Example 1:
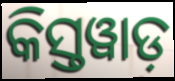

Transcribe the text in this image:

କିସ୍ତୱାଡ଼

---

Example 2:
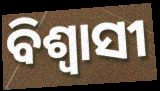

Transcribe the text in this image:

ବିଶ୍ୱାସୀ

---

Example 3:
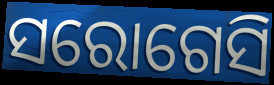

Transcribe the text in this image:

ସରୋଗେସି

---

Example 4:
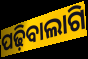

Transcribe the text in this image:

ପଢ଼ିବାଲାଗି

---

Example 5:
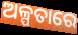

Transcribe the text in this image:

ଅଳ୍ପତାରେ